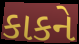
કાકને